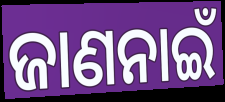
ଜାଣନାଇଁ